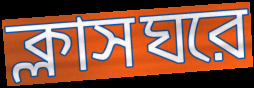
ক্লাসঘরে